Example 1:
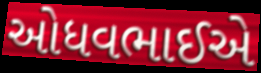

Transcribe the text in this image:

ઓધવભાઈએ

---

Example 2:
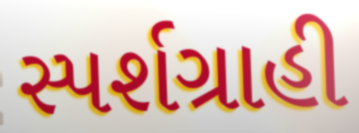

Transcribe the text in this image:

સ્પર્શગ્રાહી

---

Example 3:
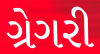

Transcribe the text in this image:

ગ્રેગરી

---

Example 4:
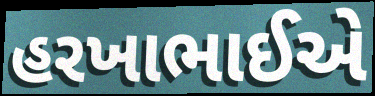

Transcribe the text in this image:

હરખાભાઈએ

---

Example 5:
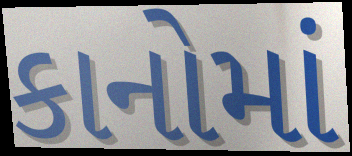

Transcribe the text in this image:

કાનોમાં